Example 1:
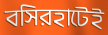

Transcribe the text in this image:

বসিরহাটেই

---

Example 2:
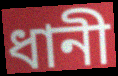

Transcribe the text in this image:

ধানী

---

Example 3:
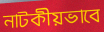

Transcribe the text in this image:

নাটকীয়ভাবে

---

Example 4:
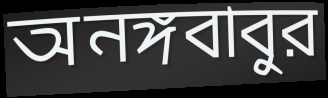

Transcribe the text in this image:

অনঙ্গবাবুর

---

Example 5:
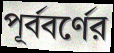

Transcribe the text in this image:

পূর্ববর্ণের